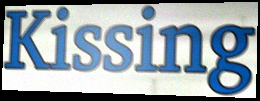
Kissing